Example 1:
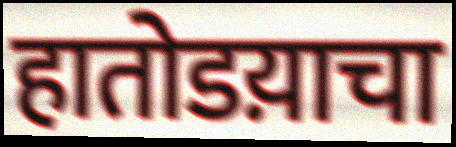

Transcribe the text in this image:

हातोडय़ाचा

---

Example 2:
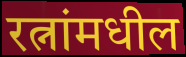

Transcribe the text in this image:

रत्नांमधील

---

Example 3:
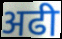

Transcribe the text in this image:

अढी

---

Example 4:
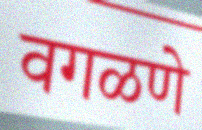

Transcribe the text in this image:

वगळणे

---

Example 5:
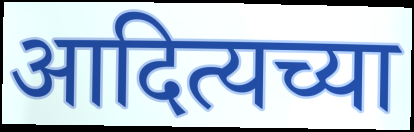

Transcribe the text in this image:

आदित्यच्या